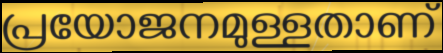
പ്രയോജനമുള്ളതാണ്